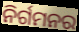
ନିର୍ଗମନର